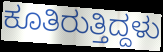
ಕೂತಿರುತ್ತಿದ್ದಳು